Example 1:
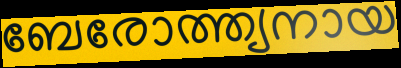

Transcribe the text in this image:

ബേരോത്ത്യനായ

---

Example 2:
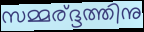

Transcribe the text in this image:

സമ്മര്ദ്ദത്തിനു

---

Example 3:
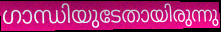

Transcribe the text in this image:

ഗാന്ധിയുടേതായിരുന്നു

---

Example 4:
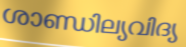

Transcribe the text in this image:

ശാണ്ഡില്യവിദ്യ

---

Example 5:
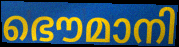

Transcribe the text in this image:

ഭൌമാനി